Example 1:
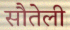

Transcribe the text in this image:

सौतेली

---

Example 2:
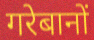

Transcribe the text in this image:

गरेबानों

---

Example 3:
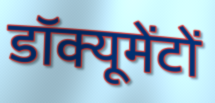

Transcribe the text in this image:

डॉक्यूमेंटों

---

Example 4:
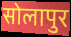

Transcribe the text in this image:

सोलापुर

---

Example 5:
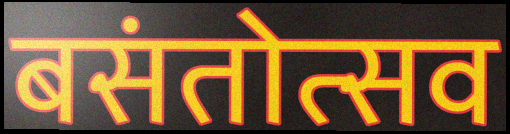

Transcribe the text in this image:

बसंतोत्सव